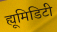
ह्यूमिडिटी